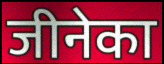
जीनेका